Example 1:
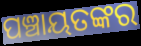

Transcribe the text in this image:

ପଞ୍ଚାୟତଙ୍କର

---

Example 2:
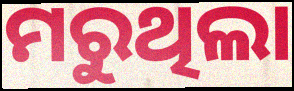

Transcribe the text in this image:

ମରୁଥିଲା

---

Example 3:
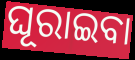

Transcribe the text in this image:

ଘୂରାଇବା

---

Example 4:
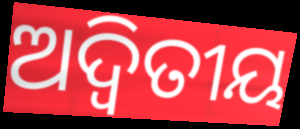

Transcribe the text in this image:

ଅଦ୍ବିତୀୟ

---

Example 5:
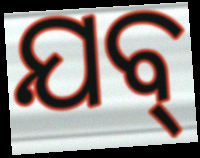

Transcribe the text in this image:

ଯବ୍